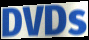
DVDs